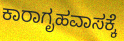
ಕಾರಾಗೃಹವಾಸಕ್ಕೆ